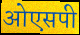
ओएसपी